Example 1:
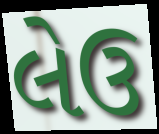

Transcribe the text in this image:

લેઉ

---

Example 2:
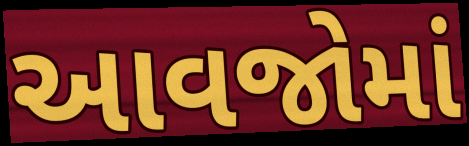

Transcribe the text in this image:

આવજોમાં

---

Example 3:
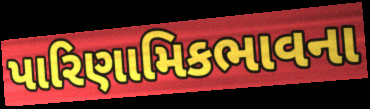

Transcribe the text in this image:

પારિણામિકભાવના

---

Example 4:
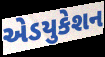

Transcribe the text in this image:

એડયુકેશન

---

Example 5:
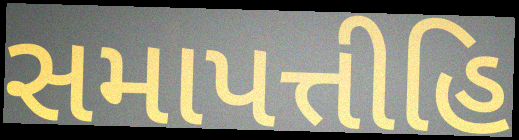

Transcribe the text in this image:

સમાપત્તીહિ